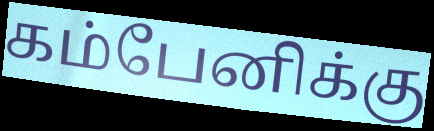
கம்பேனிக்கு